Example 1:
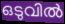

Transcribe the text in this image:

ഒടുവിൽ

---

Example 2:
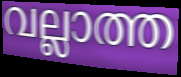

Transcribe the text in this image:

വല്ലാത്ത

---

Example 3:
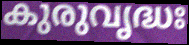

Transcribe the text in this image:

കുരുവൃദ്ധഃ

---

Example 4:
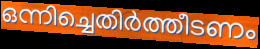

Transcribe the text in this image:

ഒന്നിച്ചെതിർത്തീടണം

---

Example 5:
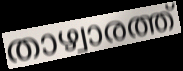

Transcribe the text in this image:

താഴ്വാരത്ത്